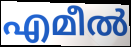
എമീൽ